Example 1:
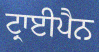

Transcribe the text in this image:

ਟ੍ਰਾਈਪੈਨ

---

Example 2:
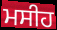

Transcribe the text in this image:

ਮਸੀਹ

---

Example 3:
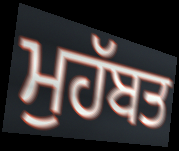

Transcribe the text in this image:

ਮੁਹੱਬਤ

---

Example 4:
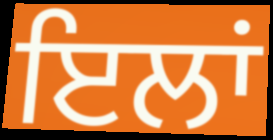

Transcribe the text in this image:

ਇਲਾਂ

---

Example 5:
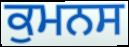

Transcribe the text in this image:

ਕੁਮਨਸ